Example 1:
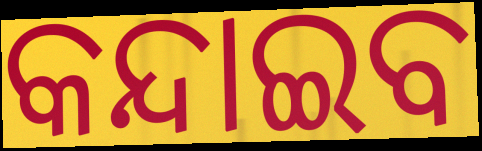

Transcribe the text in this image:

କନ୍ଦାଇବ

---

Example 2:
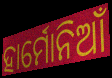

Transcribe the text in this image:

ହାର୍ମୋନିଆଁ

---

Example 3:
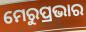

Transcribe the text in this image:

ମେରୁପ୍ରଭାର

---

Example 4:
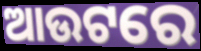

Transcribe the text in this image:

ଆଉଟରେ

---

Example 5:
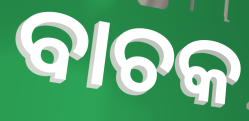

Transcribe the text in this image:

ବାଚକ